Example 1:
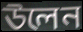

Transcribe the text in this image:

উলেন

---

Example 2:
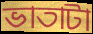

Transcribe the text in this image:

ভাতাটা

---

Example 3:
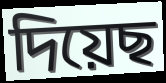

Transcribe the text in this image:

দিয়েছ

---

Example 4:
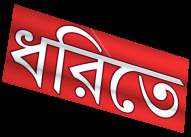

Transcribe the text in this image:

ধরিতে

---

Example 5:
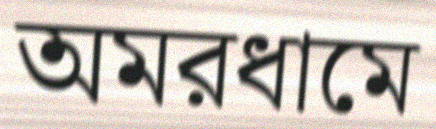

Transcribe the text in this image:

অমরধামে